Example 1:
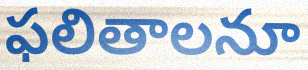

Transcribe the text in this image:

ఫలితాలనూ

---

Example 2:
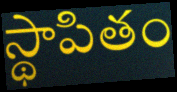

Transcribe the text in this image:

స్థాపితం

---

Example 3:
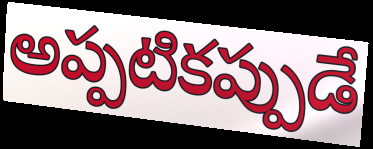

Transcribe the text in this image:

అప్పటికప్పుడే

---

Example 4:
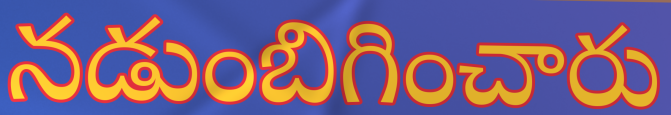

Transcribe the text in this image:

నడుంబిగించారు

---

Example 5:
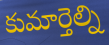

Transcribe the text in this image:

కుమార్తెల్ని